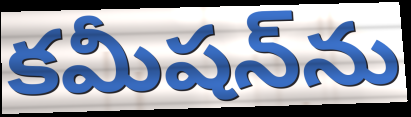
కమీషన్‌ను